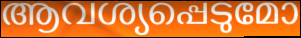
ആവശ്യപ്പെടുമോ